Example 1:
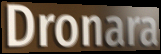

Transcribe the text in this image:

Dronara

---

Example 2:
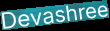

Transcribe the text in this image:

Devashree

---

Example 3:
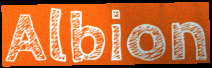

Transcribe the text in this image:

Albion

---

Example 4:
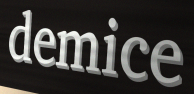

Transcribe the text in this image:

demice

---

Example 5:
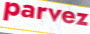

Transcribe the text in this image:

parvez